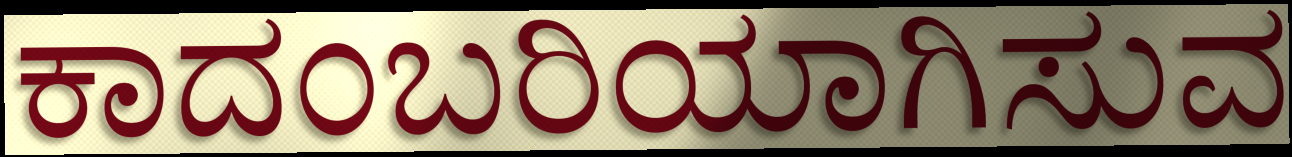
ಕಾದಂಬರಿಯಾಗಿಸುವ